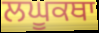
ਲਘੂਕਥਾ